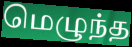
மெழுந்த